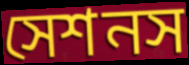
সেশনস